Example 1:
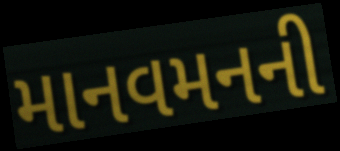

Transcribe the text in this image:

માનવમનની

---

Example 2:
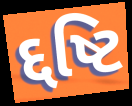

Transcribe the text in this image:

દ્દષ્ટિ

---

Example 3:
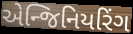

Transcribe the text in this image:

એન્જિનિયરિંગ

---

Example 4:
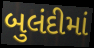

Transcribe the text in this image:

બુલંદીમાં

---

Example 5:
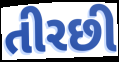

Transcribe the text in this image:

તીરછી